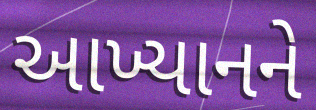
આખ્યાનને